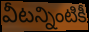
వీటన్నింటికీ